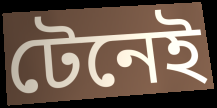
টেনেই